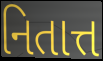
નિતાત્ત